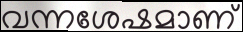
വന്നശേഷമാണ്